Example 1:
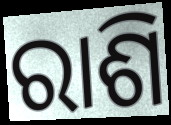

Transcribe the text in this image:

ରାଶି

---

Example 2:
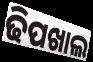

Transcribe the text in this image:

ଢିପଖାଲ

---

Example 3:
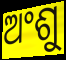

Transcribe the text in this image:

ଅଂଶୁ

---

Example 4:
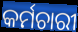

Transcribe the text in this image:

କର୍ମଚାରୀ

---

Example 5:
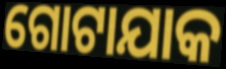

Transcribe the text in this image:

ଗୋଟାଯାକ